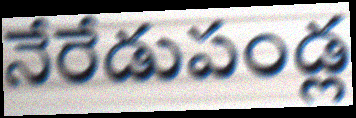
నేరేడుపండ్ల